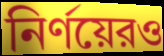
নির্ণয়েরও